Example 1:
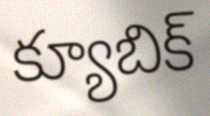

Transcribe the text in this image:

క్యూబిక్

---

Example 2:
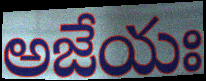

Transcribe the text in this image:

అజేయః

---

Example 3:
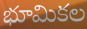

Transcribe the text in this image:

భూమికల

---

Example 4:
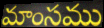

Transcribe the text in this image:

మాంసము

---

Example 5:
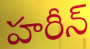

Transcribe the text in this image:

హరీన్